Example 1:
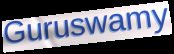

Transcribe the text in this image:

Guruswamy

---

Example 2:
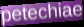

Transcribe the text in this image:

petechiae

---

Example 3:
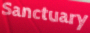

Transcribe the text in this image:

Sanctuary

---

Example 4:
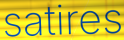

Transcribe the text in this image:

satires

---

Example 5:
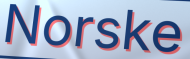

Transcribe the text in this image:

Norske